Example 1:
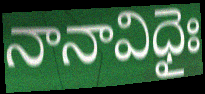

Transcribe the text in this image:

నానావిధైః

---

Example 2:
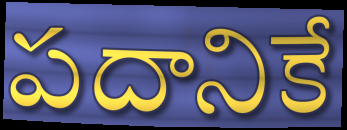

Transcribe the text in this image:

పదానికే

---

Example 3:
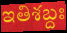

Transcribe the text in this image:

ఇతిశబ్దః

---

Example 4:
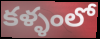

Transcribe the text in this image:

కళ్ళంలో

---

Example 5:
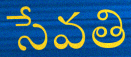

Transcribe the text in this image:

సేవతి